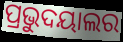
ପ୍ରଭୁଦୟାଲର